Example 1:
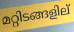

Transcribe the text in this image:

മറ്റിടങ്ങളില്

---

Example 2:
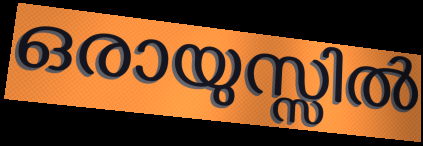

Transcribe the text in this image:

ഒരായുസ്സിൽ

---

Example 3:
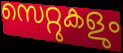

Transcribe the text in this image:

സെറ്റുകളും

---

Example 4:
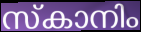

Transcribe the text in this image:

സ്‌കാനിം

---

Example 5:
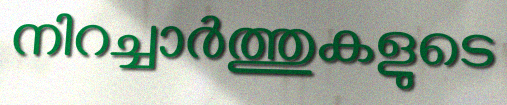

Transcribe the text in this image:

നിറച്ചാർത്തുകളുടെ